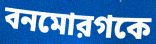
বনমোরগকে